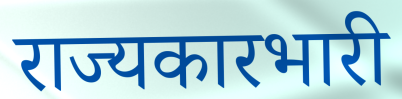
राज्यकारभारी